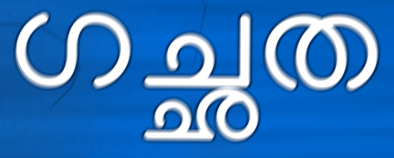
ഗച്ഛത